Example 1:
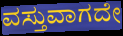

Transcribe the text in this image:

ವಸ್ತುವಾಗದೇ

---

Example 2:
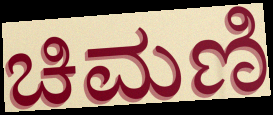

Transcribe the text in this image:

ಚಿಮಣಿ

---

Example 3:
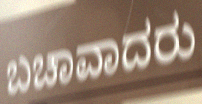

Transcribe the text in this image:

ಬಚಾವಾದರು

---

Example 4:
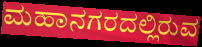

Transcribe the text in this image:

ಮಹಾನಗರದಲ್ಲಿರುವ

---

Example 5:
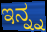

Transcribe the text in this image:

ಇನ್ನ್ನ